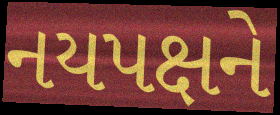
નયપક્ષને